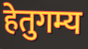
हेतुगम्य